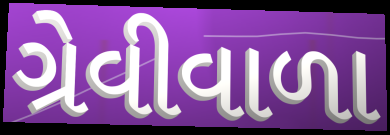
ગ્રેવીવાળા